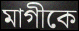
মাগীকে